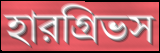
হারগ্রিভস